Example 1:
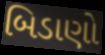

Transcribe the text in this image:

બિડાણો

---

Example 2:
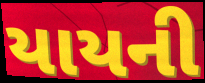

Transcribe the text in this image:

યાયની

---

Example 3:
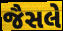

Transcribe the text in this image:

જૈસલે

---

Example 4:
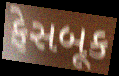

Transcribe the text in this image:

ફેસબૂક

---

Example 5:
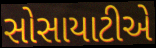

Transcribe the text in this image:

સોસાયાટીએ